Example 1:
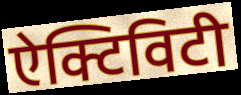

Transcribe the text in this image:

ऐक्टिविटी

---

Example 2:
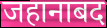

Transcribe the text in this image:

जहानाबद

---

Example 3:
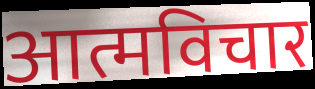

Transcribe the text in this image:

आत्मविचार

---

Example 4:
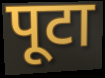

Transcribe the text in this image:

पूटा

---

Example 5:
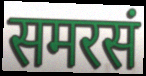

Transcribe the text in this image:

समरसं